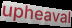
upheaval